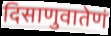
दिसाणुवातेणं